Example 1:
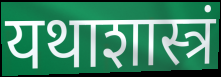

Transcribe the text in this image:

यथाशास्त्रं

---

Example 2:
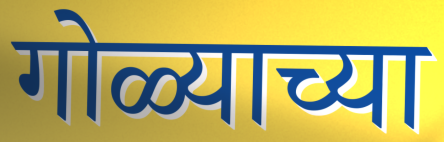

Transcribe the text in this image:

गोळ्याच्या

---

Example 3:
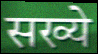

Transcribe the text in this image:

सख्ये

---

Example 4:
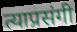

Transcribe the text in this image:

त्याप्रसंगी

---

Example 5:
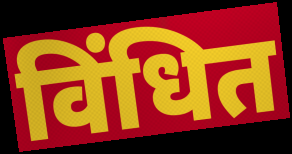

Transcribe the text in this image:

विंधित